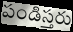
పండిస్తరు